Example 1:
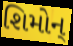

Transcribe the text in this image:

શિમોન્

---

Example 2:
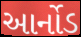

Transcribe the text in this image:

આર્નોડ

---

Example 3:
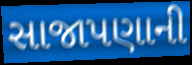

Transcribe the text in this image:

સાજાપણાની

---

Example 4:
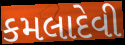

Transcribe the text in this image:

કમલાદેવી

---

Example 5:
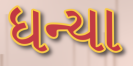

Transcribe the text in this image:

ધન્યા